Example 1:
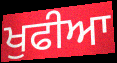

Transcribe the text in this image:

ਖੁਫੀਆ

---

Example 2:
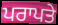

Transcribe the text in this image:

ਪਰਾਪਤੇ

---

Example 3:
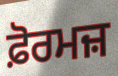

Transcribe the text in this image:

ਫ਼ੋਰਮਜ਼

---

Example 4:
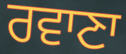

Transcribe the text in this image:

ਰਵਾਣਾ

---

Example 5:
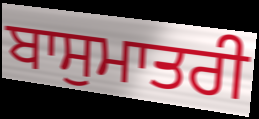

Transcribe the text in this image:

ਬਾਸੁਮਾਤਰੀ